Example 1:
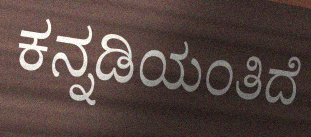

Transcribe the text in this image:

ಕನ್ನಡಿಯಂತಿದೆ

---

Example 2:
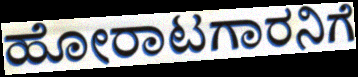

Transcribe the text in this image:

ಹೋರಾಟಗಾರನಿಗೆ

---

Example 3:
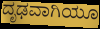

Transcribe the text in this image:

ದೃಢವಾಗಿಯೂ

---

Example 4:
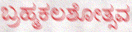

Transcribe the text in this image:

ಬ್ರಹ್ಮಕಲಶೋತ್ಸವ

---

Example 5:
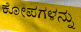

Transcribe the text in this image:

ಕೋಪಗಳನ್ನು